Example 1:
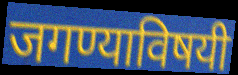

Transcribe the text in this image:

जगण्याविषयी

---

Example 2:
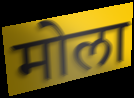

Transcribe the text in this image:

मोला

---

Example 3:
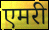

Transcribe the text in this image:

एमरी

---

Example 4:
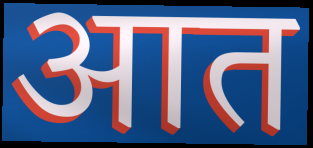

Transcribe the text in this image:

आत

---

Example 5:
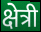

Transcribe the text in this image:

क्षेत्री